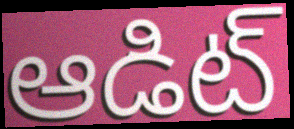
ఆడిట్